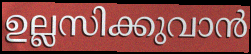
ഉല്ലസിക്കുവാൻ